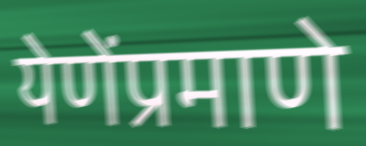
येणेंप्रमाणे